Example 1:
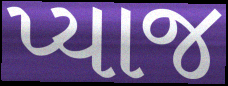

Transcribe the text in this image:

પ્યાજ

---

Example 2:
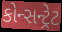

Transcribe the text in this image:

કોન્સન્ટ્રેટ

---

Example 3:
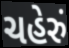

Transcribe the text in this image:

ચહેરું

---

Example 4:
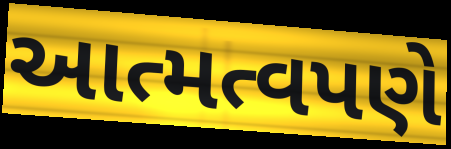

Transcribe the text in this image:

આત્મત્વપણે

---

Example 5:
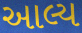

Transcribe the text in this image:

આલ્ય